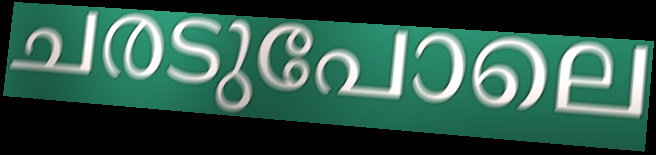
ചരടുപോലെ